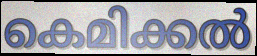
കെമിക്കൽ